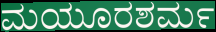
ಮಯೂರಶರ್ಮ